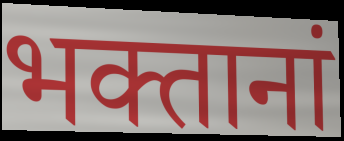
भक्तानां